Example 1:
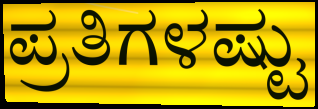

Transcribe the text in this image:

ಪ್ರತಿಗಳಷ್ಟು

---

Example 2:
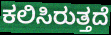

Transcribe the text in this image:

ಕಲಿಸಿರುತ್ತದೆ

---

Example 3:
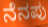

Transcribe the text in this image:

ನೆನಪು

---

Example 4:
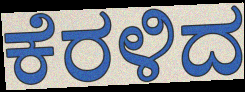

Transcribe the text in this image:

ಕೆರಳಿದ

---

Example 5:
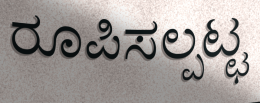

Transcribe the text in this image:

ರೂಪಿಸಲ್ಪಟ್ಟ